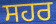
ਸਹਰ